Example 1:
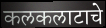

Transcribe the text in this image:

कलकलाटाचे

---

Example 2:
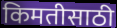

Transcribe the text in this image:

किमतीसाठी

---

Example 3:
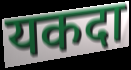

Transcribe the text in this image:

यकदा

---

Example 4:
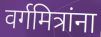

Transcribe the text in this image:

वर्गमित्रांना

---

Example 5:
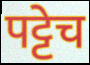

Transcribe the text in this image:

पट्टेच